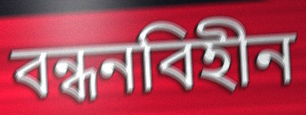
বন্ধনবিহীন